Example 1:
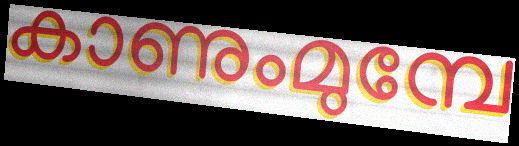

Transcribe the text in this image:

കാണുംമുമ്പേ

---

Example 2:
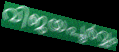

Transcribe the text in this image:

വിജയപൂർവ്വം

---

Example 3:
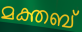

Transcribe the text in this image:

മക്തബ്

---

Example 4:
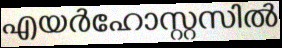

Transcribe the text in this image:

എയർഹോസ്റ്റസിൽ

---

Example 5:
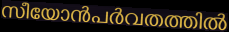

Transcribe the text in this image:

സീയോൻപർവതത്തിൽ